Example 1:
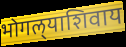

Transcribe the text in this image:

भोगल्याशिवाय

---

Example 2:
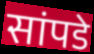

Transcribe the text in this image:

सांपडे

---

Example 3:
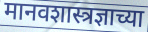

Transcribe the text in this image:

मानवशास्त्रज्ञाच्या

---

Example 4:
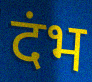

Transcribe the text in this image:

दंभ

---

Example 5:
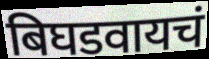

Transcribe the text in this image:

बिघडवायचं